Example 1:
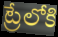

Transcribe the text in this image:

ట్రేలోకి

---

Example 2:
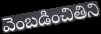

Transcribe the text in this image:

వెంబడించితిని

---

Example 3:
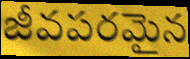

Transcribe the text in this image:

జీవపరమైన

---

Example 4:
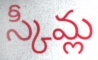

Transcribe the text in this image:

స్కీమ్ల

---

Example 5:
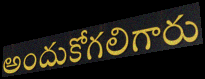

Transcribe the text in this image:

అందుకోగలిగారు